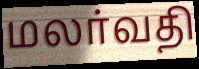
மலர்வதி